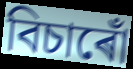
বিচাৰোঁ